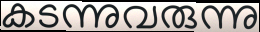
കടന്നുവരുന്നു